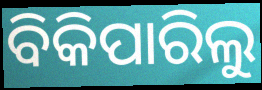
ବିକିପାରିଲୁ